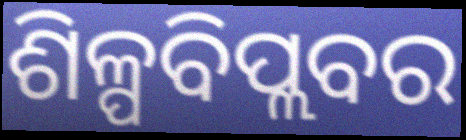
ଶିଳ୍ପବିପ୍ଲବର